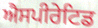
ਐਸਪੀਰੇਟਿਡ